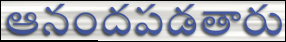
ఆనందపడతారు